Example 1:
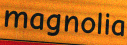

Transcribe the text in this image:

magnolia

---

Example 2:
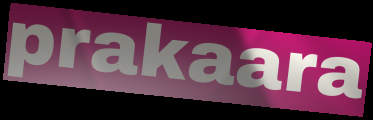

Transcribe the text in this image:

prakaara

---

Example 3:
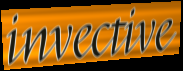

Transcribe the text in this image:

invective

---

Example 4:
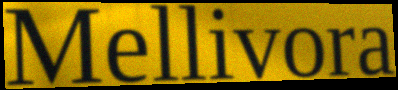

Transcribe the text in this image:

Mellivora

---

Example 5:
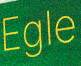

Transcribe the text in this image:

Egle